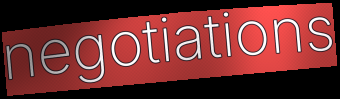
negotiations